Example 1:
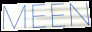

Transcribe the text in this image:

MEEN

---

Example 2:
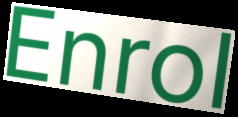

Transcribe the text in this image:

Enrol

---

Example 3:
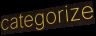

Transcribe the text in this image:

categorize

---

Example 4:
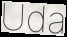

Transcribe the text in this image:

Uda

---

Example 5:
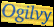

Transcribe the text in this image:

Ogilvy